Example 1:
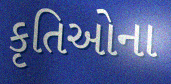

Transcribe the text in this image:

કૃતિઓના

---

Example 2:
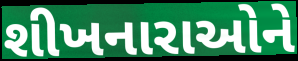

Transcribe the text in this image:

શીખનારાઓને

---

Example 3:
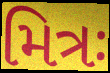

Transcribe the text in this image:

મિત્રઃ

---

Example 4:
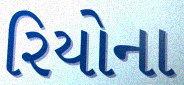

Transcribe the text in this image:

રિયોના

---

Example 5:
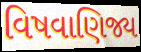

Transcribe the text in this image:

વિષવાણિજ્ય